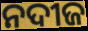
ନଦୀଜ